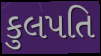
કુલપતિ